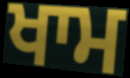
ਖਾਮ